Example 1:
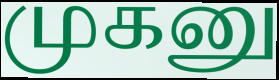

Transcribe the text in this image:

முகனு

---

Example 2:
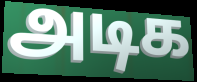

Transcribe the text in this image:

அடிக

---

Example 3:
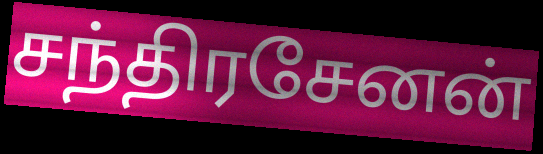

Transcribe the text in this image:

சந்திரசேனன்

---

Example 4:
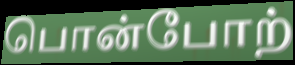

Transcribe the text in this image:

பொன்போற்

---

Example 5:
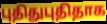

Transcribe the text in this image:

புதிதுபுதிதாக